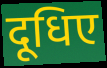
दूधिए